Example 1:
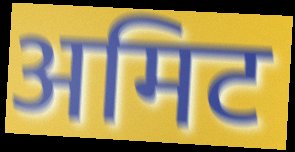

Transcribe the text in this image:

अमिट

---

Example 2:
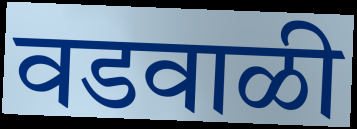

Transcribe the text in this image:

वडवाळी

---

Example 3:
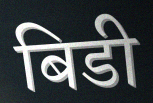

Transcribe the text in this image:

बिडी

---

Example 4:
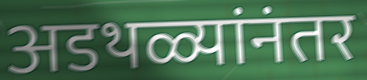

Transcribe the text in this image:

अडथळ्यांनंतर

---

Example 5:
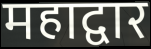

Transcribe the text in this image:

महाद्वार